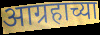
आग्रहाच्या